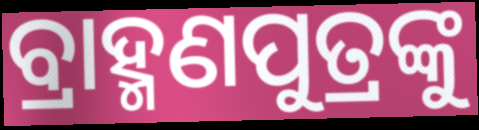
ବ୍ରାହ୍ମଣପୁତ୍ରଙ୍କୁ